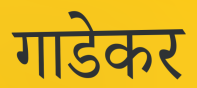
गाडेकर